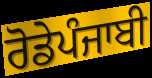
ਰੋਡੇਪੰਜਾਬੀ